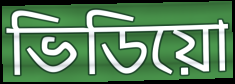
ভিডিয়ো